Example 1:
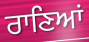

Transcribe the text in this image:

ਰਾਣਿਆਂ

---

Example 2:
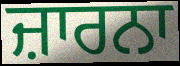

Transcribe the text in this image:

ਜ਼ਾਰਨਾ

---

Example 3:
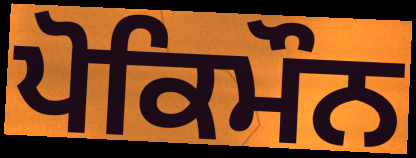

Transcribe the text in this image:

ਪੋਕਿਮੌਨ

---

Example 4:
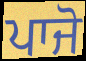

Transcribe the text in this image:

ਪਾਜੋ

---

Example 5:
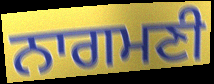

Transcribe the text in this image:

ਨਾਗਮਣੀ